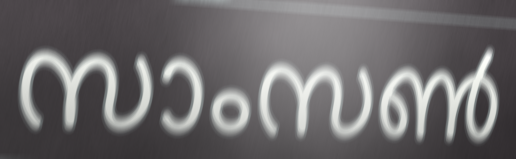
സാംസൺ